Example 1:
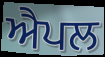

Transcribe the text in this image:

ਐਪਲ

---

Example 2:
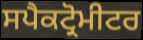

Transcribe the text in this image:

ਸਪੈਕਟ੍ਰੋਮੀਟਰ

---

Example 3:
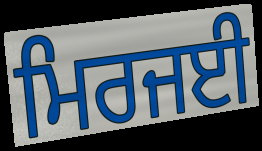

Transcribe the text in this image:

ਮਿਰਜਈ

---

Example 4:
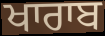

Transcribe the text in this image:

ਖਾਰਾਬ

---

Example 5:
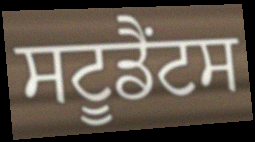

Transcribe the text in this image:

ਸਟੂਡੈਂਟਸ